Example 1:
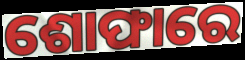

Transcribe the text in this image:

ଶୋଫାରେ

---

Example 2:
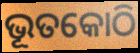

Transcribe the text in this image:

ଭୂତକୋଠି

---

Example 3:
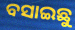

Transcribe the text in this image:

ବସାଇଛୁ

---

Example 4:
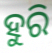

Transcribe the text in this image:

ହୁରି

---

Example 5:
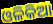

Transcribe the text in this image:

ଓଳିକିଆ